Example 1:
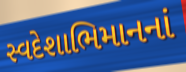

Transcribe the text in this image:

સ્વદેશાભિમાનનાં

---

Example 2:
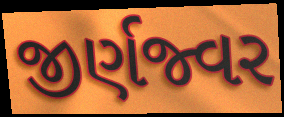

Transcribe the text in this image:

જીર્ણજ્વર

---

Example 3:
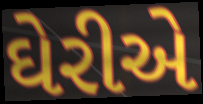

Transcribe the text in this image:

ઘેરીએ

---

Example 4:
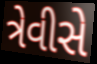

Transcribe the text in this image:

ત્રેવીસે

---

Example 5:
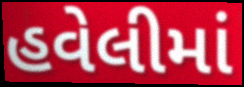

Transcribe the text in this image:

હવેલીમાં